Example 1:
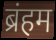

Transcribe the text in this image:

ब्रंहम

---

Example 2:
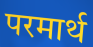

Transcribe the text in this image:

परमार्थ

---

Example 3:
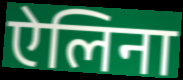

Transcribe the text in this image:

ऐलिना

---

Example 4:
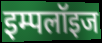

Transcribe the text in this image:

इम्पलॉइज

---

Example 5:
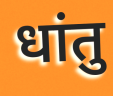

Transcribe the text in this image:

धांतु